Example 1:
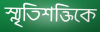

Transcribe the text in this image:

স্মৃতিশক্তিকে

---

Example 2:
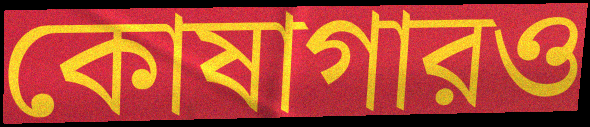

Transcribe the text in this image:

কোষাগারও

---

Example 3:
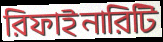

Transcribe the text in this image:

রিফাইনারিটি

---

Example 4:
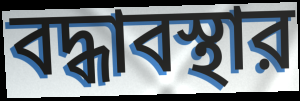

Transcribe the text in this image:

বদ্ধাবস্থার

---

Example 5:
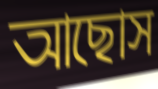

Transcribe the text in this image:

আছোস